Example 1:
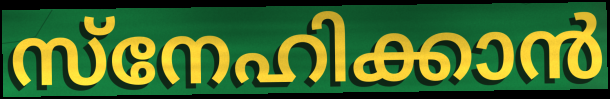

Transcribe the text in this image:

സ്നേഹിക്കാൻ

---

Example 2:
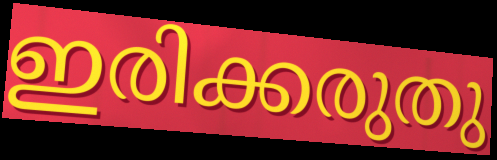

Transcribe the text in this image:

ഇരിക്കരുതു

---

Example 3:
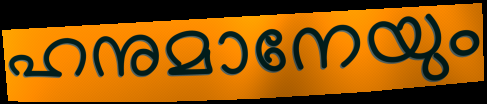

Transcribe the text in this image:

ഹനുമാനേയും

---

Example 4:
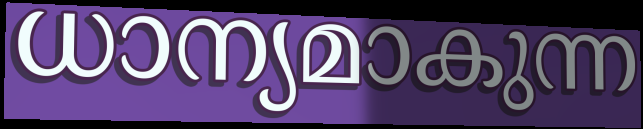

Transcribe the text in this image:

ധാന്യമാകുന്ന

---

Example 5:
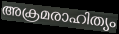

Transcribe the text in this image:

അക്രമരാഹിത്യം